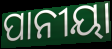
ପାନୀୟା